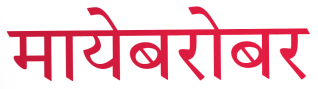
मायेबरोबर